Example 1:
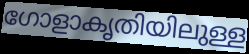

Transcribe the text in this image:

ഗോളാകൃതിയിലുള്ള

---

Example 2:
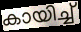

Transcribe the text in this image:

കായിച്ച്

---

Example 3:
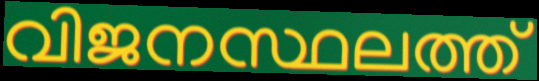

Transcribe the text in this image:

വിജനസ്ഥലത്ത്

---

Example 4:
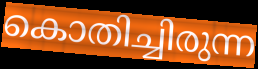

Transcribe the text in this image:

കൊതിച്ചിരുന്ന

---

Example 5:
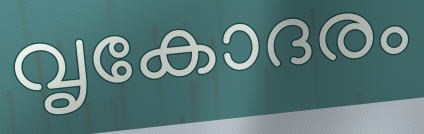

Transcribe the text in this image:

വൃകോദരം